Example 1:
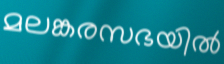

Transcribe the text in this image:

മലങ്കരസഭയിൽ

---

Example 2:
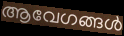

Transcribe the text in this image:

ആവേഗങ്ങൾ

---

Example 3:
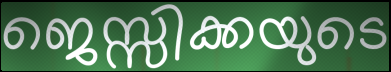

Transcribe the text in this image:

ജെസ്സിക്കയുടെ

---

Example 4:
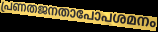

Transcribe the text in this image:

പ്രണതജനതാപോപശമനം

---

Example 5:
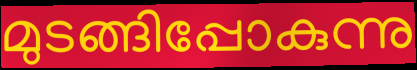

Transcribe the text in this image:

മുടങ്ങിപ്പോകുന്നു